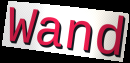
Wand